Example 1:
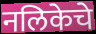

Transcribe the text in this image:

नलिकेचे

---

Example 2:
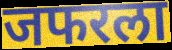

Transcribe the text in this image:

जफरला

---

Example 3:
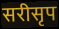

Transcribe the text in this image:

सरीसृप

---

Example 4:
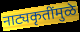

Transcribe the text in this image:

नाट्यकृतींमुळे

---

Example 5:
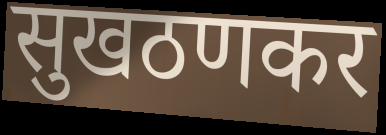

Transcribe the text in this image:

सुखठणकर